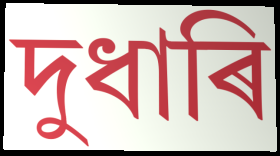
দুধাৰি